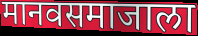
मानवसमाजाला